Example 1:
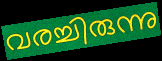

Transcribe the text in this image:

വരച്ചിരുന്നു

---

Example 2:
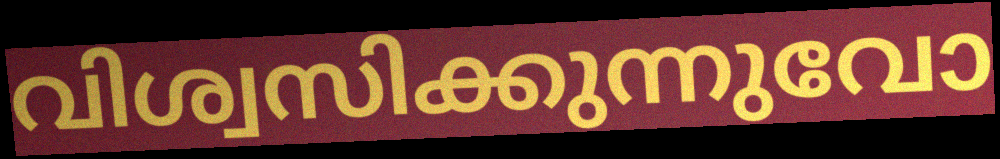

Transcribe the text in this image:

വിശ്വസിക്കുന്നുവോ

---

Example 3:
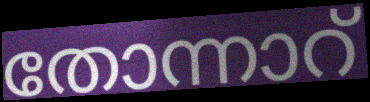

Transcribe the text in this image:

തോന്നാറ്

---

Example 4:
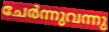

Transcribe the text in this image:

ചേർന്നുവന്നു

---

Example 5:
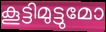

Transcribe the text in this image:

കൂട്ടിമുട്ടുമോ